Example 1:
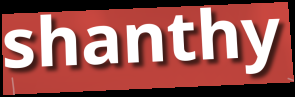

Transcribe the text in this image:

shanthy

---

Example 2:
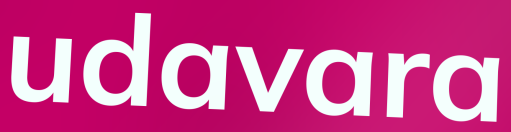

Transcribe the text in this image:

udavara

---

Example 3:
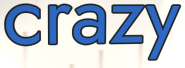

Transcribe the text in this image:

crazy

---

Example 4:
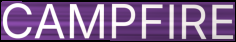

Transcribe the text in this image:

CAMPFIRE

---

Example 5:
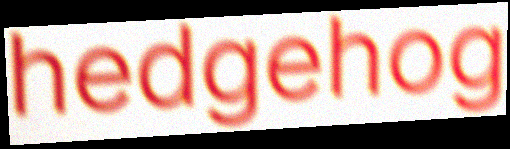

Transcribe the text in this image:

hedgehog